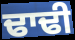
ਢਾਢੀ